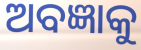
ଅବଜ୍ଞାକୁ